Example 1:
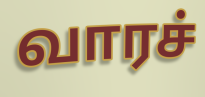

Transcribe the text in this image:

வாரச்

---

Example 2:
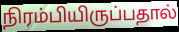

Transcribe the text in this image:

நிரம்பியிருப்பதால்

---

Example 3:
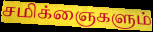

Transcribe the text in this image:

சமிக்ஞைகளும்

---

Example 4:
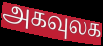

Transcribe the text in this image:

அகவுலக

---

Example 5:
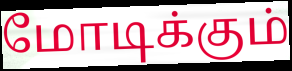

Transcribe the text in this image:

மோடிக்கும்